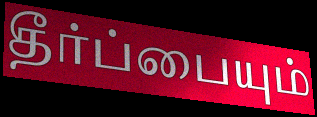
தீர்ப்பையும்